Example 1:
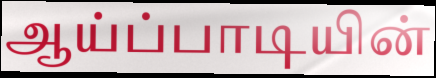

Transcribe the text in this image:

ஆய்ப்பாடியின்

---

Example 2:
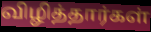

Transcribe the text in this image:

விழித்தார்கள்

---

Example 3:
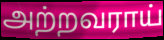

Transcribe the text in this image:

அற்றவராய்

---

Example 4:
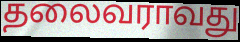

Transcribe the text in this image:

தலைவராவது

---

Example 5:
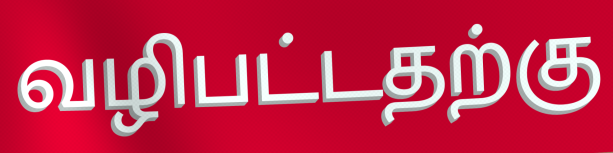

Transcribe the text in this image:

வழிபட்டதற்கு